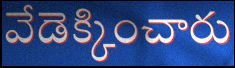
వేడెక్కించారు